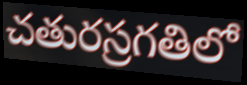
చతురస్రగతిలో